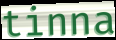
tinna